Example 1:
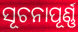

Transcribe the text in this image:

ସୂଚନାପୂର୍ଣ୍ଣ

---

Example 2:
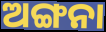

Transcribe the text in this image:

ଅଙ୍ଗନା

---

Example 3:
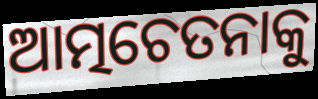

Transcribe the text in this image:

ଆତ୍ମଚେତନାକୁ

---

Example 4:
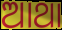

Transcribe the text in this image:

ଆଥା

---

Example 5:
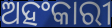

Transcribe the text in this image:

ଅହଂକାରୀ